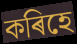
কৰিহে